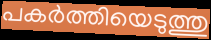
പകർത്തിയെടുത്തു